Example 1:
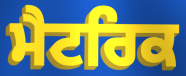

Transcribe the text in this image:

ਮੈਟਰਿਕ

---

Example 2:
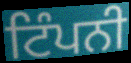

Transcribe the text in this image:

ਟਿੰਪਨੀ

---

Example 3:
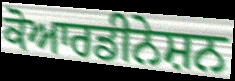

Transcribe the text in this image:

ਕੋਆਰਡੀਨੇਸ਼ਨ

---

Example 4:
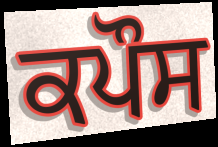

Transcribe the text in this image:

ਕਪੌਸ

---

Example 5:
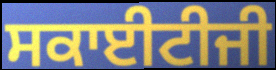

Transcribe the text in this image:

ਸਕਾਈਟੀਜੀ